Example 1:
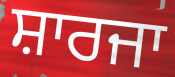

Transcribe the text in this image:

ਸ਼ਾਰਜਾ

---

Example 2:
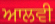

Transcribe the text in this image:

ਆਲਵੀ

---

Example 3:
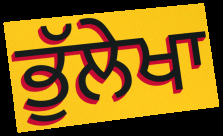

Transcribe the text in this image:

ਭੁੱਲੇਖਾ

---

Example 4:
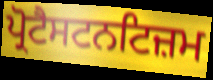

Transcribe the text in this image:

ਪ੍ਰੋਟੈਸਟਨਟਿਜ਼ਮ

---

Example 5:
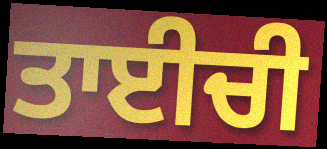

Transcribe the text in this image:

ਤਾਈਚੀ